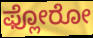
ಫ್ಲೋರೋ